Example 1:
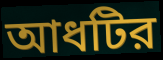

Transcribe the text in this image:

আধটির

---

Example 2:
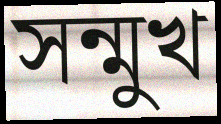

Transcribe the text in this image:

সন্মুখ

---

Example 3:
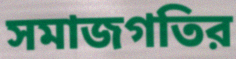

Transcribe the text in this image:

সমাজগতির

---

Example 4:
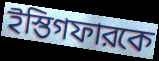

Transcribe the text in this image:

ইস্তিগফারকে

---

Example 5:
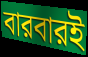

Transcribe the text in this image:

বারবারই